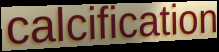
calcification